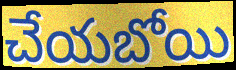
చేయబోయి